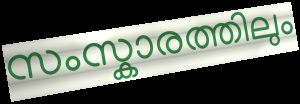
സംസ്കാരത്തിലും